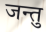
जन्तु